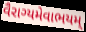
વૈરાગ્યમેવાભયમ્